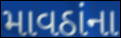
માવઠાંના